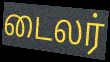
டைலர்